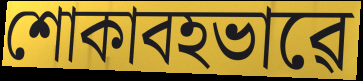
শোকাবহভাৱে